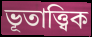
ভূতাত্ত্বিক